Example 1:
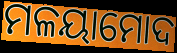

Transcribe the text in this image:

ମଳୟାମୋଦ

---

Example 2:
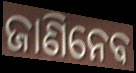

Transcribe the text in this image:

ଜାଣିନେବ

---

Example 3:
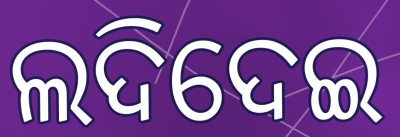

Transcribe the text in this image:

ଲଦିଦେଇ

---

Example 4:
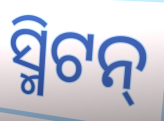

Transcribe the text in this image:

ସ୍ମିଟନ୍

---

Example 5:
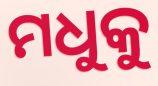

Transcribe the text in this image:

ମଧୁକୁ